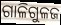
ଗାଳିଗୁଳଜ